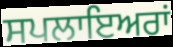
ਸਪਲਾਇਅਰਾਂ